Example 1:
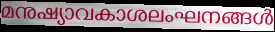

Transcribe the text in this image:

മനുഷ്യാവകാശലംഘനങ്ങൾ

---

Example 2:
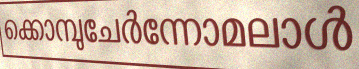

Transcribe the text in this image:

ക്കൊമ്പുചേർന്നോമലാൾ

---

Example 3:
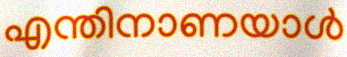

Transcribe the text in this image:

എന്തിനാണയാൾ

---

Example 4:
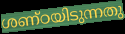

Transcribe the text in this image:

ശണ്ഠയിടുന്നതു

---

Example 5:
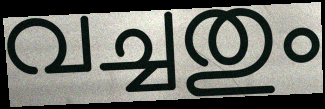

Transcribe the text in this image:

വച്ചതും